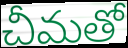
చీమతో